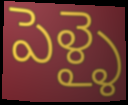
పెళ్ళై